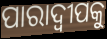
ପାରାଦ୍ୱୀପକୁ